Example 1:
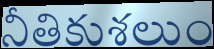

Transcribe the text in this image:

నీతికుశలుం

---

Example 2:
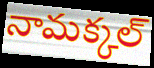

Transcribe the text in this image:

నామక్కల్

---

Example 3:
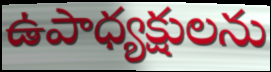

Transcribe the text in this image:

ఉపాధ్యక్షులను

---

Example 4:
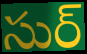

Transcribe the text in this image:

సుర్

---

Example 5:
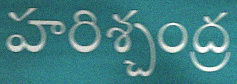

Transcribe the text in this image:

హరిశ్చంద్ర